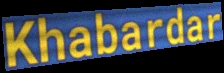
Khabardar